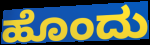
ಹೊಂದು